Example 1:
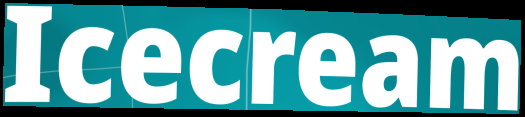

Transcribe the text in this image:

Icecream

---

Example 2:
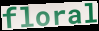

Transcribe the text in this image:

floral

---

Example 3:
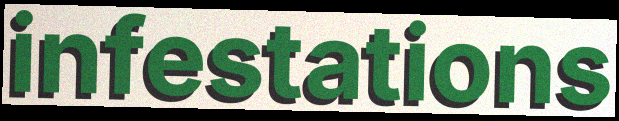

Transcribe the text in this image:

infestations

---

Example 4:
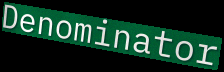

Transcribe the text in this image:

Denominator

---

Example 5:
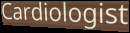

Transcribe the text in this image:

Cardiologist